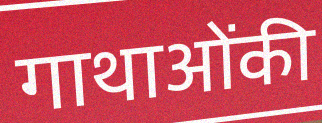
गाथाओंकी